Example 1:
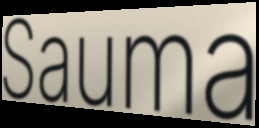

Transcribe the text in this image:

Sauma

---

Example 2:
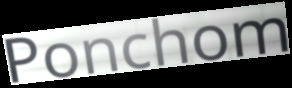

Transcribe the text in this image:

Ponchom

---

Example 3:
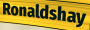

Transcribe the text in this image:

Ronaldshay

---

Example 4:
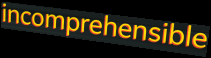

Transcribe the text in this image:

incomprehensible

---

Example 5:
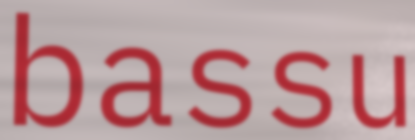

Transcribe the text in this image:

bassu